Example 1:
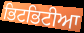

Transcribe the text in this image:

ਭਿਟਭਿਟੀਆ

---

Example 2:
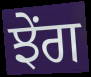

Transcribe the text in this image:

ਝੇਂਗ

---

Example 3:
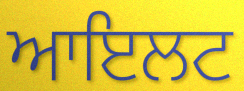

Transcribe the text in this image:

ਆਇਲਟ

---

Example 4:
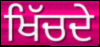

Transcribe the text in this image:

ਖਿੱਚਦੇ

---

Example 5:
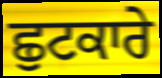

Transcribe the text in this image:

ਛੁਟਕਾਰੇ